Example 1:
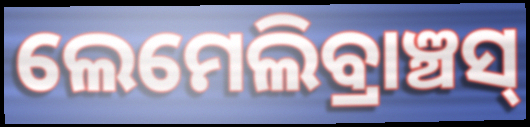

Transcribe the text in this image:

ଲେମେଲିବ୍ରାଞ୍ଚସ୍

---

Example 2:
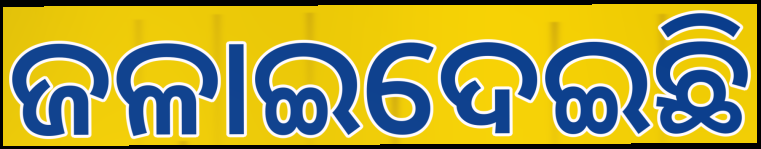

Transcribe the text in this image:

ଜଳାଇଦେଇଛି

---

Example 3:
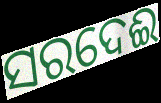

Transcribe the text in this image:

ସରଦେଈ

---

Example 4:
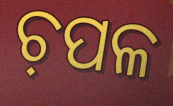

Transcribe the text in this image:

ଚ଼ପଳ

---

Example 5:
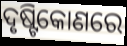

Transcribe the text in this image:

ଦୃଷ୍ଟିକୋଣରେ